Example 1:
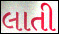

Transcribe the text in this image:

લાતી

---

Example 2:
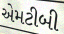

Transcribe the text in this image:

એમટીબી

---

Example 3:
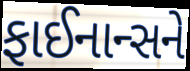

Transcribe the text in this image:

ફાઈનાન્સને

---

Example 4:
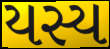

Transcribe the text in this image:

યસ્ય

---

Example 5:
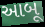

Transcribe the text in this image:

આબૂ